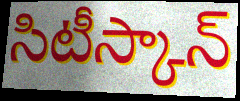
సిటీస్కాన్